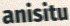
anisitu